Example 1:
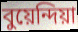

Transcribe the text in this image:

বুয়েন্দিয়া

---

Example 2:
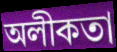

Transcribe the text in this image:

অলীকতা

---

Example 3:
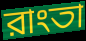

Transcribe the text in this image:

রাংতা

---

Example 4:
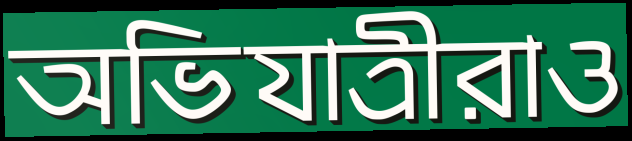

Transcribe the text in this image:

অভিযাত্রীরাও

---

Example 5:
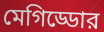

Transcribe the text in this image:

মেগিড্ডোর